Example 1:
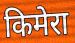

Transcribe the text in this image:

किमेरा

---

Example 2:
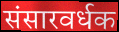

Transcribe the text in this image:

संसारवर्धक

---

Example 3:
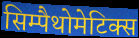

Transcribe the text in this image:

सिम्पैथोमेटिक्स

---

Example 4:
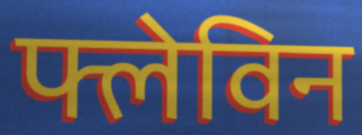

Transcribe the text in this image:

फ्लेविन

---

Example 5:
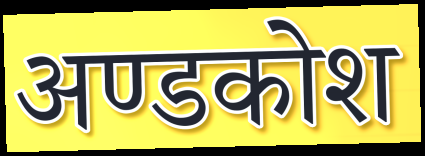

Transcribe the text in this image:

अण्डकोश